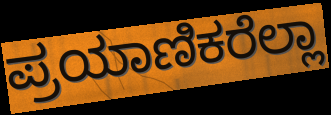
ಪ್ರಯಾಣಿಕರೆಲ್ಲಾ